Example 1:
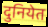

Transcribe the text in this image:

दुनियेत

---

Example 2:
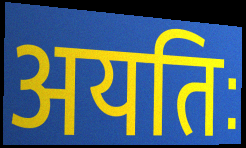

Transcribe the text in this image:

अयतिः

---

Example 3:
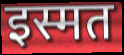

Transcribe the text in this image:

इस्मत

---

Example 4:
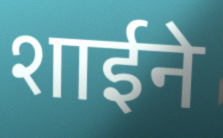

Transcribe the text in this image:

शाईने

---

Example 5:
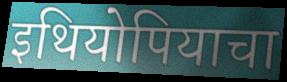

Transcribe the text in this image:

इथियोपियाचा